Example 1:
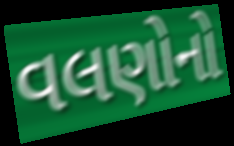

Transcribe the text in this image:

વલણોનો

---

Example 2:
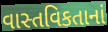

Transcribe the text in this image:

વાસ્તવિકતાનાં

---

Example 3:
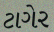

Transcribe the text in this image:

ટાગેર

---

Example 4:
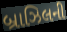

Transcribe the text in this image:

બ્રાઝિલની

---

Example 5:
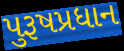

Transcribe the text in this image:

પુરૂષપ્રધાન